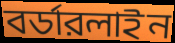
বর্ডারলাইন